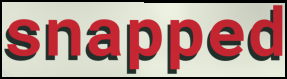
snapped